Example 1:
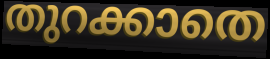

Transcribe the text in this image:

തുറക്കാതെ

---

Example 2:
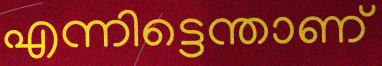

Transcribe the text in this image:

എന്നിട്ടെന്താണ്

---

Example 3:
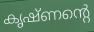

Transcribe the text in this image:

കൃഷ്ണന്റെ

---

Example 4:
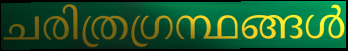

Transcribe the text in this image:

ചരിത്രഗ്രന്ഥങ്ങൾ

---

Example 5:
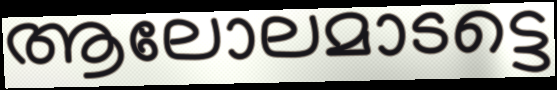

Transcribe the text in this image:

ആലോലമാടട്ടെ